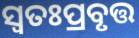
ସ୍ୱତଃପ୍ରବୃତ୍ତ